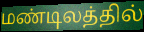
மண்டிலத்தில்